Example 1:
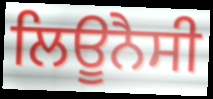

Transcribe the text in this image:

ਲਿਊਨੈਸੀ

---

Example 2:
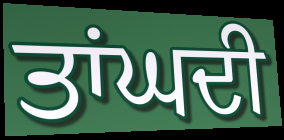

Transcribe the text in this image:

ਤਾਂਘਦੀ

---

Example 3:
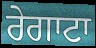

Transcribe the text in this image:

ਰੇਗਾਟਾ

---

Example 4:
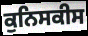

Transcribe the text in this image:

ਕੁਨਿਸਕੀਸ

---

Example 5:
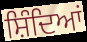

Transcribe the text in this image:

ਸ਼ਿੰਦਿਆਂ